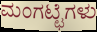
ಮಂಗಟ್ಟೆಗಳು